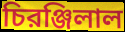
চিরঞ্জিলাল